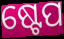
ଷ୍ଟେପ